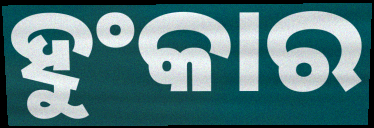
ହୁଂକାର